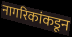
नागरिकांकडून